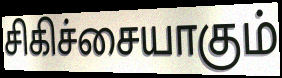
சிகிச்சையாகும்